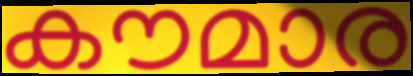
കൗമാര